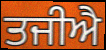
ਤਜੀਐ